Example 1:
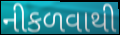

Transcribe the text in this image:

નીકળવાથી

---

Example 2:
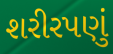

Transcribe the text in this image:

શરીરપણું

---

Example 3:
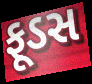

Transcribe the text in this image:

ફૂડસ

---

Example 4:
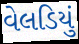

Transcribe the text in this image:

વેલડિયું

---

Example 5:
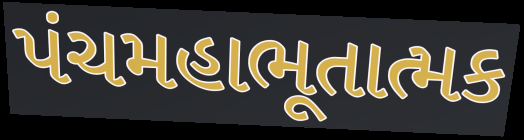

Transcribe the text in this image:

પંચમહાભૂતાત્મક